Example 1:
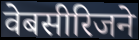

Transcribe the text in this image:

वेबसीरिजने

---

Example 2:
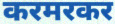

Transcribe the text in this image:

करमरकर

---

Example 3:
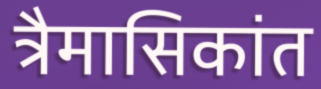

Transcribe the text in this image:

त्रैमासिकांत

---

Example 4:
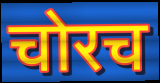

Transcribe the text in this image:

चोरच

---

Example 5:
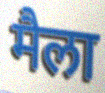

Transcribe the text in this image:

मैला